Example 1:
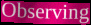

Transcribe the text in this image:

Observing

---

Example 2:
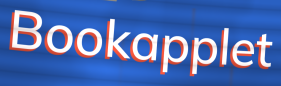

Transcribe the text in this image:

Bookapplet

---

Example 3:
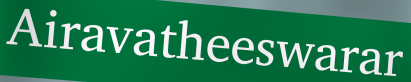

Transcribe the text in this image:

Airavatheeswarar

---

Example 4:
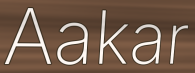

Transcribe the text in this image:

Aakar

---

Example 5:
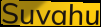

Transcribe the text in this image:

Suvahu